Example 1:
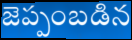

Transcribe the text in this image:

జెప్పంబడిన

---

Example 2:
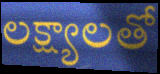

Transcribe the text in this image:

లక్ష్యాలతో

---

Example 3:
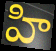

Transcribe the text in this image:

హి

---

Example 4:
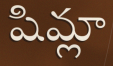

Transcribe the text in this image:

షిమ్లా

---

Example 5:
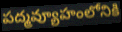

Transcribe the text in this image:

పద్మవ్యూహంలోనికి